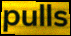
pulls